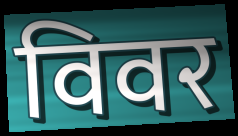
विवर